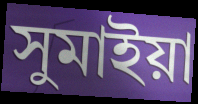
সুমাইয়া